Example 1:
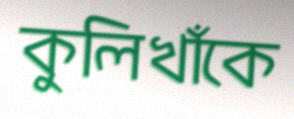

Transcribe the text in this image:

কুলিখাঁকে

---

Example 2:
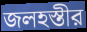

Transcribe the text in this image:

জলহস্তীর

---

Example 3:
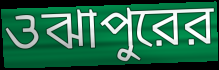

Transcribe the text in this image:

ওঝাপুরের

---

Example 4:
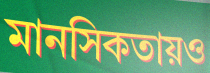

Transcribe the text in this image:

মানসিকতায়ও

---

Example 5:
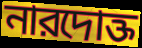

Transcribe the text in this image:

নারদোক্ত